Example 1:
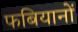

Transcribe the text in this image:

फबियानों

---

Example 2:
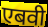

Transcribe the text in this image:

एबवी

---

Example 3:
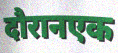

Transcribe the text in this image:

दौरानएक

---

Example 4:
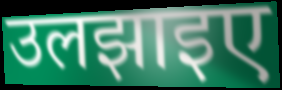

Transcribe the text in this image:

उलझाइए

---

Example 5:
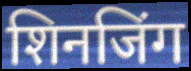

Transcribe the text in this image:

शिनजिंग